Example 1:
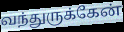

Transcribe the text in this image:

வந்துருக்கேன்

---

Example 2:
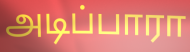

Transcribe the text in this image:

அடிப்பாரா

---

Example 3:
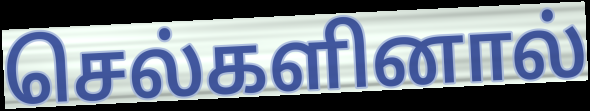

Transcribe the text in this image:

செல்களினால்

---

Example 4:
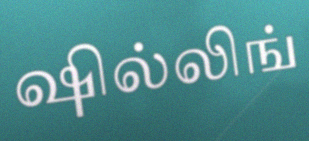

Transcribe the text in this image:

ஷில்லிங்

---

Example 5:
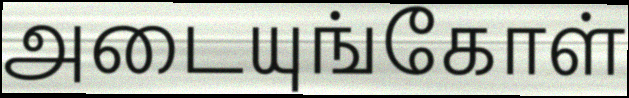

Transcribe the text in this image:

அடையுங்கோள்